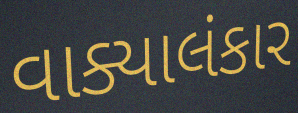
વાક્યાલંકાર